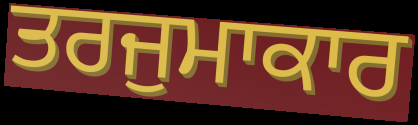
ਤਰਜੁਮਾਕਾਰ